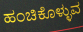
ಹಂಚಿಕೊಳ್ಳುವ